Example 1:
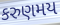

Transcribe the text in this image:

કરુણમય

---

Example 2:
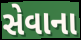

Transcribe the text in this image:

સેવાના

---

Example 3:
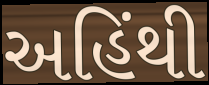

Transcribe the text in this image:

અહિંથી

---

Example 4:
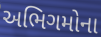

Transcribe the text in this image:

અભિગમોના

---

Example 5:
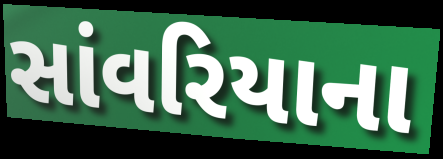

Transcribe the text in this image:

સાંવરિયાના